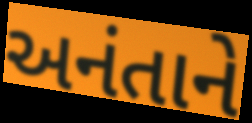
અનંતાને